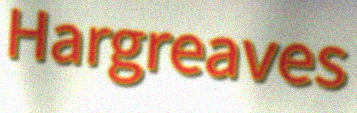
Hargreaves